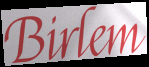
Birlem